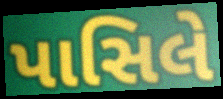
પાસિલે